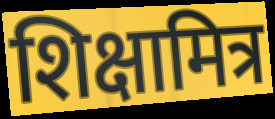
शिक्षामित्र